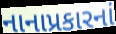
નાનાપ્રકારનાં